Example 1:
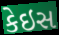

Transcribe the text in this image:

કેઇસ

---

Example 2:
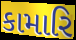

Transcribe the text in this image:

કામારિ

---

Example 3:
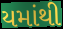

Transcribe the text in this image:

યમાંથી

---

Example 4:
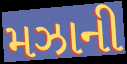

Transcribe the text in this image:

મઝાની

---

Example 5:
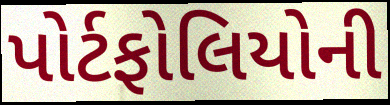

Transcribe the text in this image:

પોર્ટફોલિયોની